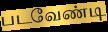
படவேண்டி